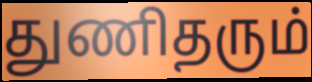
துணிதரும்